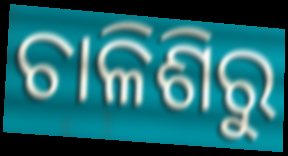
ଚାଳିଶିରୁ